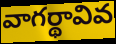
వాగర్థావివ